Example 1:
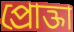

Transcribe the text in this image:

প্রোক্তা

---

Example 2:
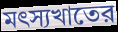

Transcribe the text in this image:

মৎস্যখাতের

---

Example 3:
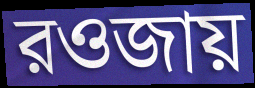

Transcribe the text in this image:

রওজায়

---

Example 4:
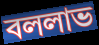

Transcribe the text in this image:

বললাভ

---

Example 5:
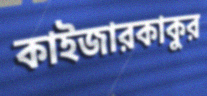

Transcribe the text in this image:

কাইজারকাকুর